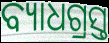
ବ୍ୟାଧଗ୍ରସ୍ତ